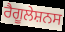
ਰੈਗੂਲੇਸ਼ਨਸ